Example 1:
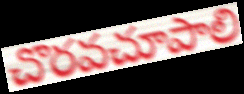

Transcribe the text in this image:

చొరవచూపాలి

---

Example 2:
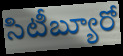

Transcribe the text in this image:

సిటీబ్యూరో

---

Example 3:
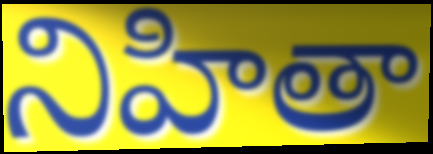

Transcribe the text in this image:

నిహితా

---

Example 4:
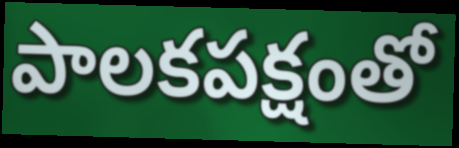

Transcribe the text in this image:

పాలకపక్షంతో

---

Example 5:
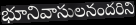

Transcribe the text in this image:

భూనివాసులనందరిని